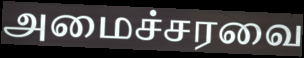
அமைச்சரவை